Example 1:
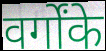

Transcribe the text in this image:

वर्गोंके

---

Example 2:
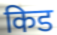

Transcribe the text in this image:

किड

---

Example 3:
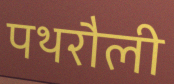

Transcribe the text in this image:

पथरौली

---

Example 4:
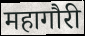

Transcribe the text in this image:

महागौरी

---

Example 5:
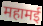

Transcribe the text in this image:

महामई